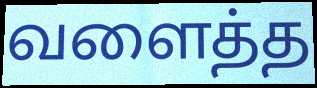
வளைத்த